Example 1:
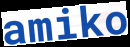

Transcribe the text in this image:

amiko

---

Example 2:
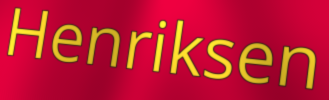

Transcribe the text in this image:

Henriksen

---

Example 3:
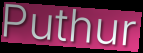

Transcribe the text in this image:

Puthur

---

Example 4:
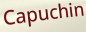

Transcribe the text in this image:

Capuchin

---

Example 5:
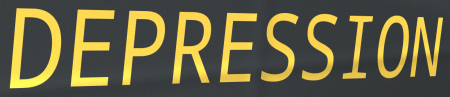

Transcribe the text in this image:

DEPRESSION